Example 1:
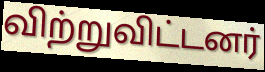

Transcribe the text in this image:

விற்றுவிட்டனர்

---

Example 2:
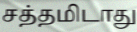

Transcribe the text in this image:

சத்தமிடாது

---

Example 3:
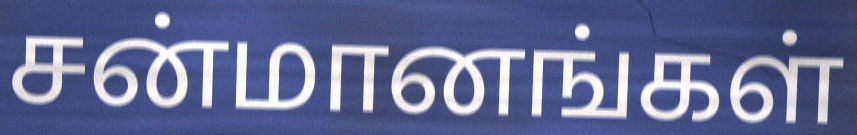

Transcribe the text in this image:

சன்மானங்கள்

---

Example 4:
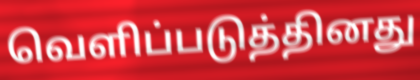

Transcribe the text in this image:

வெளிப்படுத்தினது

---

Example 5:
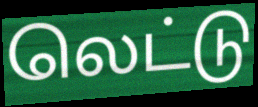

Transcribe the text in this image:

லெட்டு